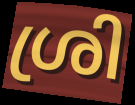
ശ്രി